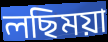
লছিময়া